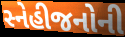
સ્નેહીજનોની